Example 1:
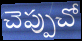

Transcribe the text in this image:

చెప్పుచో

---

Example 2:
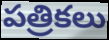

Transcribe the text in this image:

పత్రికలు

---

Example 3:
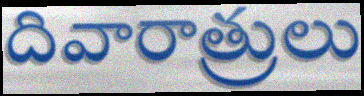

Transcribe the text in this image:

దివారాత్రులు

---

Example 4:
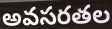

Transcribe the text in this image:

అవసరతల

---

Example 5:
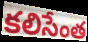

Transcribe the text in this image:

కలిసేంత